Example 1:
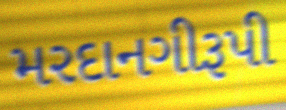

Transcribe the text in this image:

મરદાનગીરૂપી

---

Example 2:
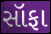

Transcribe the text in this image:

સૉફા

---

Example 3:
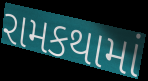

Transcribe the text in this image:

રામકથામાં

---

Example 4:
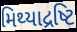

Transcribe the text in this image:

મિથ્યાદ્રષ્ટિ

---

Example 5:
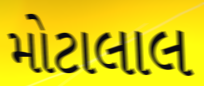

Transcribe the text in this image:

મોટાલાલ